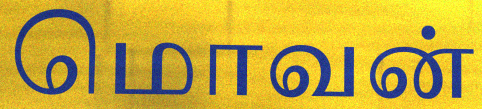
மொவன்